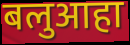
बलुआहा